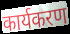
कार्यकरण